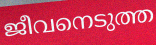
ജീവനെടുത്ത